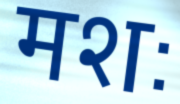
मशः